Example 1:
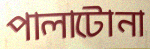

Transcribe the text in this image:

পালাটোনা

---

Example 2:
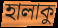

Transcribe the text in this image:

হালাকু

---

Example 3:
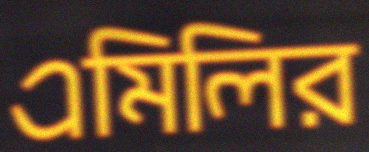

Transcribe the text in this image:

এমিলির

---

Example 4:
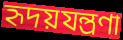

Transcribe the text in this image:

হৃদয়যন্ত্রণা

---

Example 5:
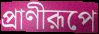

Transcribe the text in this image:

প্রাণীরূপে